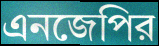
এনজেপির